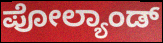
ಪೋಲ್ಯಾಂಡ್